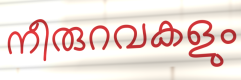
നീരുറവകളും